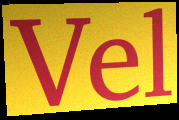
Vel